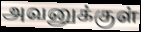
அவனுக்குள்